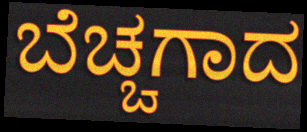
ಬೆಚ್ಚಗಾದ